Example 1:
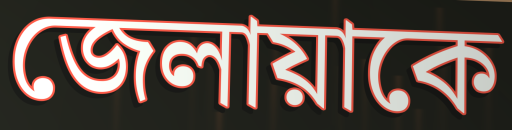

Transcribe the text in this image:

জেলায়াকে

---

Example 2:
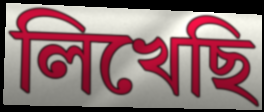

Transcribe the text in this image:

লিখেছি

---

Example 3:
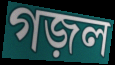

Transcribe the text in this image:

গজ়ল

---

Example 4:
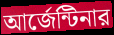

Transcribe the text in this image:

আর্জেন্টিনার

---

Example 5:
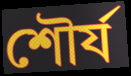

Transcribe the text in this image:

শৌর্য